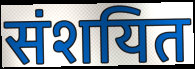
संशयित